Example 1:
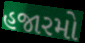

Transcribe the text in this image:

હજારમો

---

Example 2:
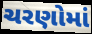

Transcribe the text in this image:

ચરણોમાં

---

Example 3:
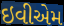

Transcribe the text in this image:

ઇવીએમ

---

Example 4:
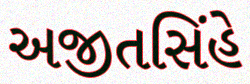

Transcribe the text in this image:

અજીતસિંહે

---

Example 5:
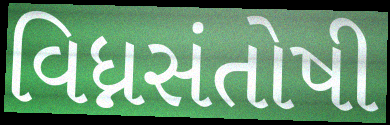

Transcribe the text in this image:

વિધ્નસંતોષી